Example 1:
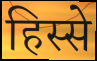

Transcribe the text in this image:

हिस्से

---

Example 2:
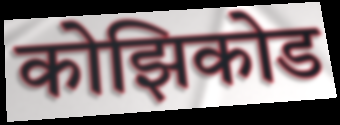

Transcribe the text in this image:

कोझिकोड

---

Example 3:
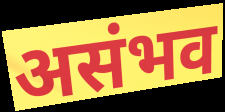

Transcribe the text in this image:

असंभव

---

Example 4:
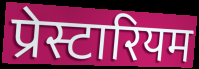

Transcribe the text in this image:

प्रेस्टारियम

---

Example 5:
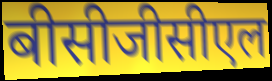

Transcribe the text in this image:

बीसीजीसीएल